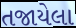
તજાયેલા